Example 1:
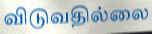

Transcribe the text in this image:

விடுவதில்லை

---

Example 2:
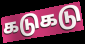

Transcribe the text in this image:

கடுகடு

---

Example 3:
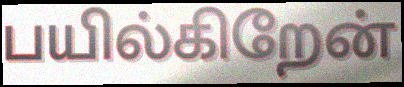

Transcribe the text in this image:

பயில்கிறேன்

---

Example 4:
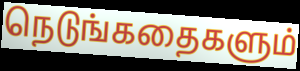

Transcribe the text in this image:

நெடுங்கதைகளும்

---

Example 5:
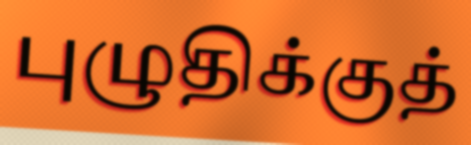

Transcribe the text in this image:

புழுதிக்குத்